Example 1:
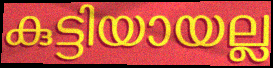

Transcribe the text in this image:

കുട്ടിയായല്ല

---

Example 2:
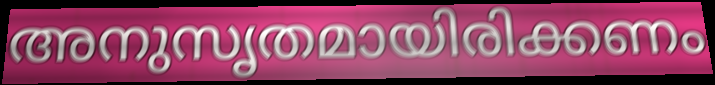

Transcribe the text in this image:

അനുസൃതമായിരിക്കണം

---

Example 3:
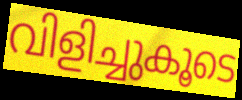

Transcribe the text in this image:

വിളിച്ചുകൂടെ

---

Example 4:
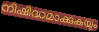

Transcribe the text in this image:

നിഷിദ്ധമാക്കുകയും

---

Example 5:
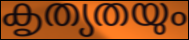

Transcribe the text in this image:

കൃത്യതയും